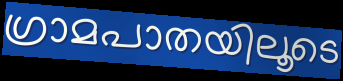
ഗ്രാമപാതയിലൂടെ